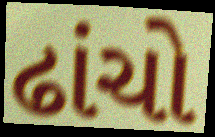
ઢાંચો